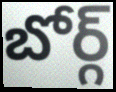
బోర్గ్